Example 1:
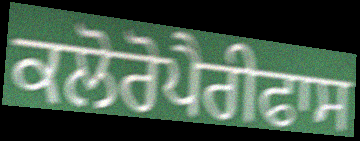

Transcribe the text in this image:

ਕਲੋਰੋਪੈਰੀਫਾਸ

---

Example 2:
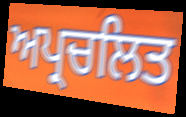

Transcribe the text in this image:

ਅਪ੍ਰਚਲਿਤ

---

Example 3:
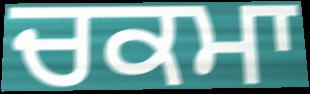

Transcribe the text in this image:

ਚਕਮਾ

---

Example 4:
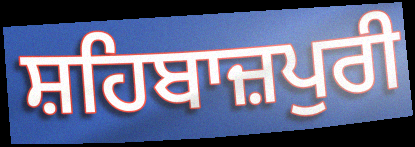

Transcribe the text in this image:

ਸ਼ਹਿਬਾਜ਼ਪੁਰੀ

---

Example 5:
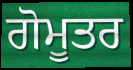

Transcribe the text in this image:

ਗੋਮੂਤਰ